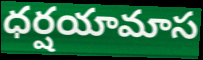
ధర్షయామాస